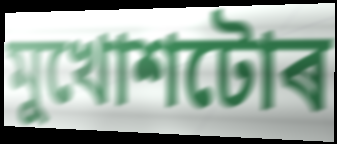
মুখোশটোৰ